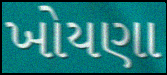
ખોયણા